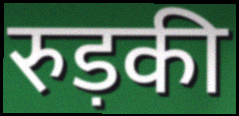
रुड़की